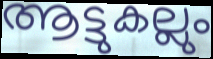
ആട്ടുകല്ലും